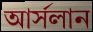
আর্সলান